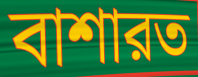
বাশারত